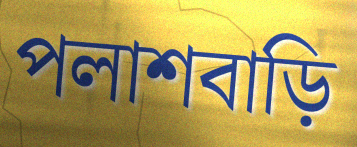
পলাশবাড়ি